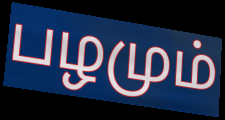
பழமும்